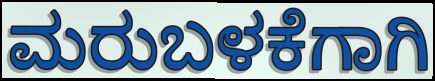
ಮರುಬಳಕೆಗಾಗಿ